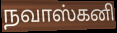
நவாஸ்கனி